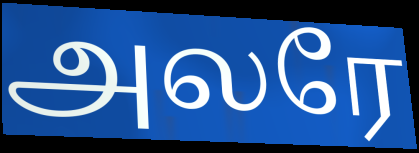
அலரே